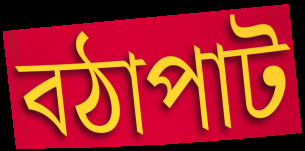
বঠাপাট